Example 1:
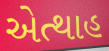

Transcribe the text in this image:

એત્થાહ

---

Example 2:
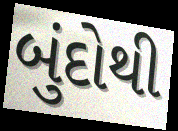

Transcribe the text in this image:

બુંદોથી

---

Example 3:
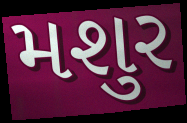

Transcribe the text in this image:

મશુર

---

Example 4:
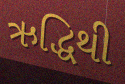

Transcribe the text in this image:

ઋદ્ધિથી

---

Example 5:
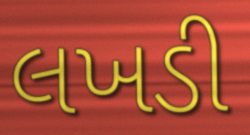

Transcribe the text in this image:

લખડી